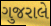
ગુજરાલે